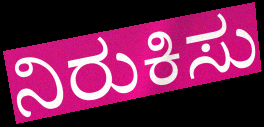
ನಿರುಕಿಸು